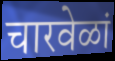
चारवेळां